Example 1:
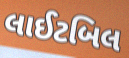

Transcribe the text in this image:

લાઈટબિલ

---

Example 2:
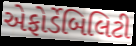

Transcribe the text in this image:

એફોર્ડેબિલિટી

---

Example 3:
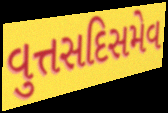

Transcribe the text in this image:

વુત્તસદિસમેવ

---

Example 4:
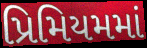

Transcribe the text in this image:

પ્રિમિયમમાં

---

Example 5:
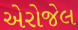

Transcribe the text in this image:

એરોજેલ